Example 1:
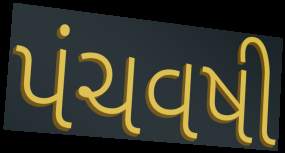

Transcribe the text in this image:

પંચવષી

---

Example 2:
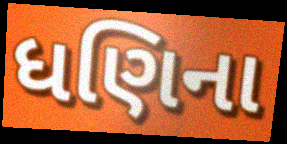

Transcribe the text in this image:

ધણિના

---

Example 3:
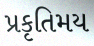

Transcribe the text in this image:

પ્રકૃતિમય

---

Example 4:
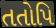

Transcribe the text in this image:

તતોપિ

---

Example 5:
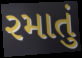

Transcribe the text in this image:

રમાતું